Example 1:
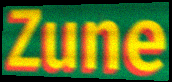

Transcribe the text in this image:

Zune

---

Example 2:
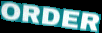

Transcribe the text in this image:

ORDER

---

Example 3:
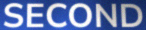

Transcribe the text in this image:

SECOND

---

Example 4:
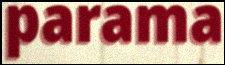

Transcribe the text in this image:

parama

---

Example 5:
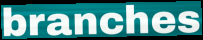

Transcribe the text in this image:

branches